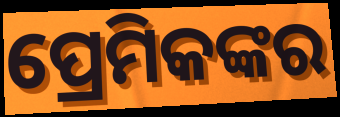
ପ୍ରେମିକଙ୍କର